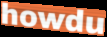
howdu